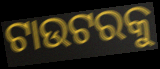
ଟାଉଟରକୁ